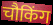
चौकिंग